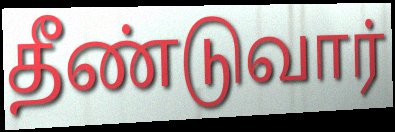
தீண்டுவார்